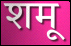
शमू